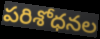
పరిశోధనల